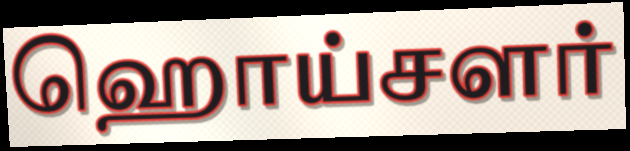
ஹொய்சளர்